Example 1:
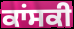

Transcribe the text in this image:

ਕਾਂਸਕੀ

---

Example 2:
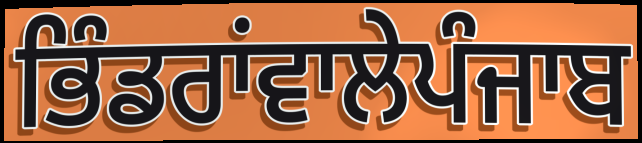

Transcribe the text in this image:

ਭਿੰਡਰਾਂਵਾਲੇਪੰਜਾਬ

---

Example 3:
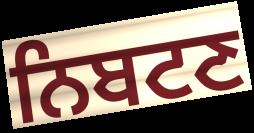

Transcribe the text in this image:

ਨਿਬਟਣ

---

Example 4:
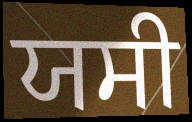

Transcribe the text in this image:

ਯਸੀ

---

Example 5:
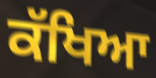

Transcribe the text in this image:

ਕੱਖਿਆ